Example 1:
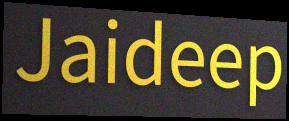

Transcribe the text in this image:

Jaideep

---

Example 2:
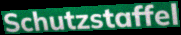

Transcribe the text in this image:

Schutzstaffel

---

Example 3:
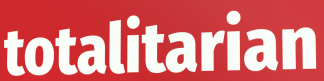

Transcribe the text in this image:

totalitarian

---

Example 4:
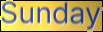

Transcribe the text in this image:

Sunday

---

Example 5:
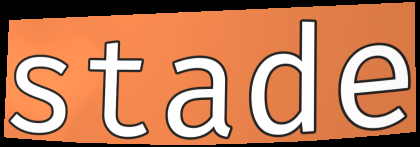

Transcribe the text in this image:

stade